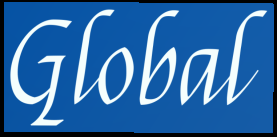
Global